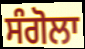
ਸੰਗੋਲਾ